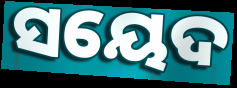
ସୟେଦ